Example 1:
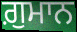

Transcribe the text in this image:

ਗ਼ੁਮਾਨ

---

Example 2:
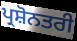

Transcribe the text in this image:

ਪ੍ਰਸ਼ੋਨਤਰੀ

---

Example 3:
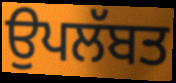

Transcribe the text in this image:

ਉਪਲੱਬਤ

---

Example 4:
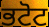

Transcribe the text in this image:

ਭਟੋਟ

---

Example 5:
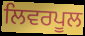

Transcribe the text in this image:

ਲਿਵਰਪੂਲ